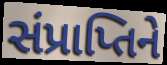
સંપ્રાપ્તિને